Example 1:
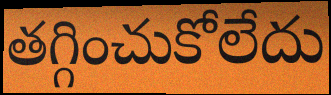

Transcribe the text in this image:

తగ్గించుకోలేదు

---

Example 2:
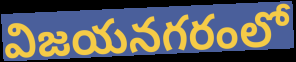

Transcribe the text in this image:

విజయనగరంలో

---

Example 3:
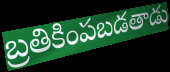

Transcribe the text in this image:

బ్రతికింపబడతాడు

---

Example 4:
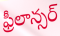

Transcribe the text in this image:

ఫ్రీలాన్సర్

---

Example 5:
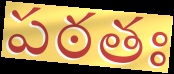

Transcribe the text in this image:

పఠతః